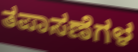
ತಪಾಸಣೆಗಳ